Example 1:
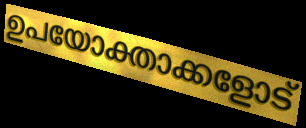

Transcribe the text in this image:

ഉപയോക്താക്കളോട്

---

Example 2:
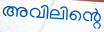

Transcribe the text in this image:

അവിലിന്റെ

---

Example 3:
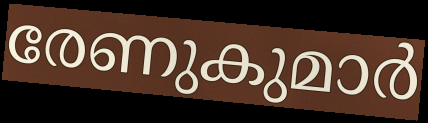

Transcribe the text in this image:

രേണുകുമാർ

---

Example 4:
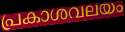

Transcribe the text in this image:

പ്രകാശവലയം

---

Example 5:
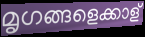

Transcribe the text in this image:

മൃഗങ്ങളെക്കാള്